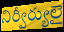
నిర్వీర్యులై